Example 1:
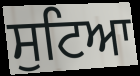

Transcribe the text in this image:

ਸੁਟਿਆ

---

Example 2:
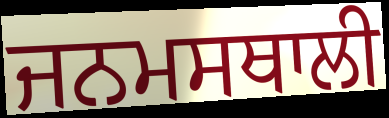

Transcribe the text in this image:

ਜਨਮਸਥਾਲੀ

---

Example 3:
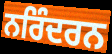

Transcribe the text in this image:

ਨਰਿੰਦਰਨ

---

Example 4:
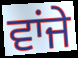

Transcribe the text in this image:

ਵਾਂਜੇ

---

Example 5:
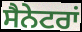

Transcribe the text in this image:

ਸੈਨੇਟਰਾਂ